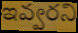
ఇవ్వరని